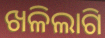
ଖଳିଲାଗି